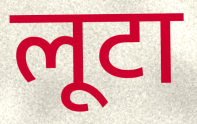
लूटा